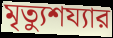
মৃত্যুশয্যার